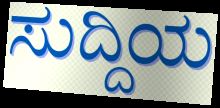
ಸುದ್ದಿಯ